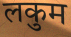
लकुम